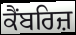
ਕੈਂਬਰਿਜ਼